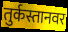
तुर्कस्तानवर